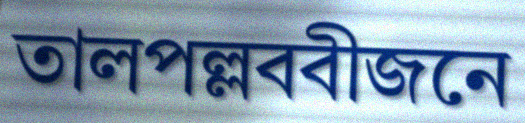
তালপল্লববীজনে